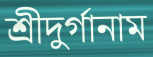
শ্রীদুর্গানাম